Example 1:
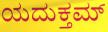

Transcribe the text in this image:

ಯದುಕ್ತಮ್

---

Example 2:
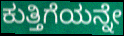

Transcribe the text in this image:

ಕುತ್ತಿಗೆಯನ್ನೇ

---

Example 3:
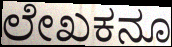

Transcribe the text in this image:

ಲೇಖಕನೂ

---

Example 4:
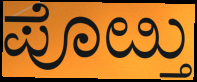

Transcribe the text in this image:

ಪೊೞ್ತು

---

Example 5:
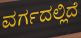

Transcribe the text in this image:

ವರ್ಗದಲ್ಲಿದೆ